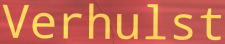
Verhulst